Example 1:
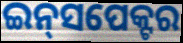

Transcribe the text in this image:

ଇନ୍‌ସପେକ୍ଟର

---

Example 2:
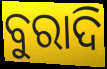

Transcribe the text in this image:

ବୁରାଦି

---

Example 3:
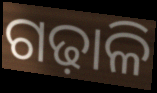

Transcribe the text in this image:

ଗଢ଼ାଳି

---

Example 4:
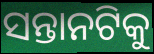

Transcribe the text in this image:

ସନ୍ତାନଟିକୁ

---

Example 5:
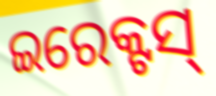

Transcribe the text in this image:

ଇରେକ୍ଟସ୍